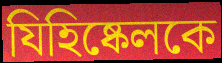
যিহিষ্কেলকে